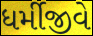
ધર્મીજીવે